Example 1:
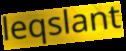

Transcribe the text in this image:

leqslant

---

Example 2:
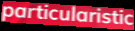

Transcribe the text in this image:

particularistic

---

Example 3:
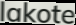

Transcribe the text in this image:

lakote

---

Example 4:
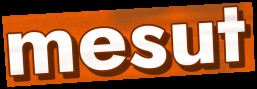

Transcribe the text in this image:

mesut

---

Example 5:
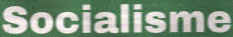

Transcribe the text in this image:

Socialisme